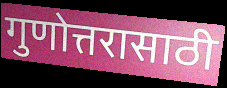
गुणोत्तरासाठी